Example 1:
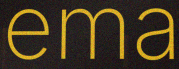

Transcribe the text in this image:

ema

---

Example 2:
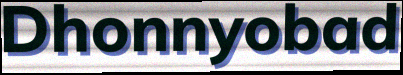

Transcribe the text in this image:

Dhonnyobad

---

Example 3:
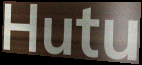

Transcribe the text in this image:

Hutu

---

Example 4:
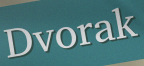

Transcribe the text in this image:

Dvorak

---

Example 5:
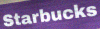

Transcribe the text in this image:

Starbucks